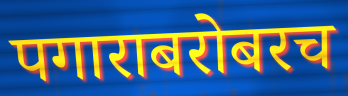
पगाराबरोबरच